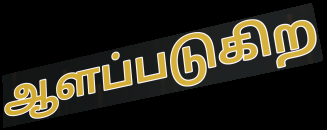
ஆளப்படுகிற